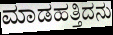
ಮಾಡಹತ್ತಿದನು